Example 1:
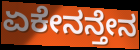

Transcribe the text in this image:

ಏಕೇನನ್ತೇನ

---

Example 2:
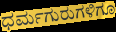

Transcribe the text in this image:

ಧರ್ಮಗುರುಗಳಿಗೂ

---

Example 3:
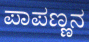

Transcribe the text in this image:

ಪಾಪಣ್ಣನ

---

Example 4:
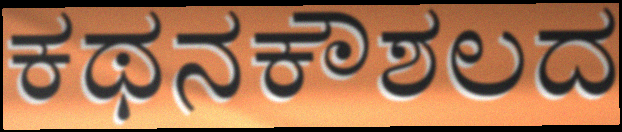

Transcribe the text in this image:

ಕಥನಕೌಶಲದ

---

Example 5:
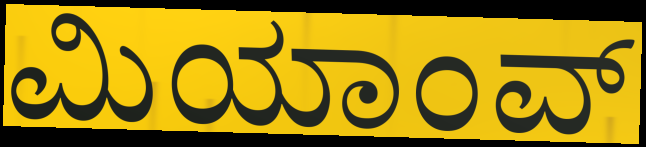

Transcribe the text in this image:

ಮಿಯಾಂವ್